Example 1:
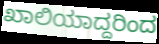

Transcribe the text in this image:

ಖಾಲಿಯಾದ್ದರಿಂದ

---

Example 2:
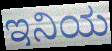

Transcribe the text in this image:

ಇನಿಯ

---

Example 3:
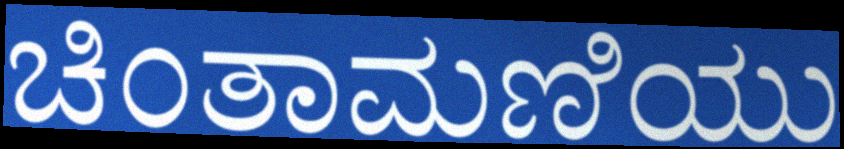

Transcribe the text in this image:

ಚಿಂತಾಮಣಿಯು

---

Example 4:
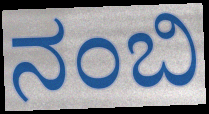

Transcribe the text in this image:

ನಂಬಿ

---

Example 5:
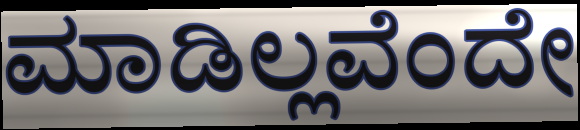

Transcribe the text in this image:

ಮಾಡಿಲ್ಲವೆಂದೇ